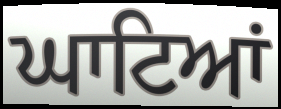
ਘਾਟਿਆਂ